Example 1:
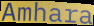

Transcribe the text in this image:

Amhara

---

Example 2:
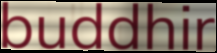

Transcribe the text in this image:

buddhir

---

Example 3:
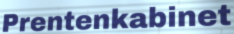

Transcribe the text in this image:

Prentenkabinet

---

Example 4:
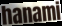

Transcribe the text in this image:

hanami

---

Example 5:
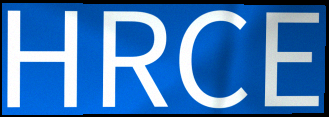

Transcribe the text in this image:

HRCE